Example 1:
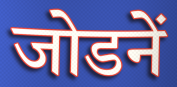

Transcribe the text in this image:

जोडनें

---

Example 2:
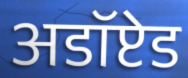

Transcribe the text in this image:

अडॉप्टेड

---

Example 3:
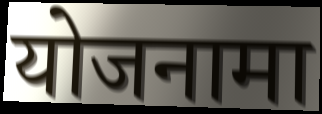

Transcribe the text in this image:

योजनामा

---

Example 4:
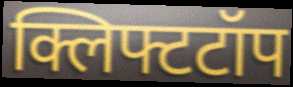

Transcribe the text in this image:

क्लिफ्टटॉप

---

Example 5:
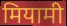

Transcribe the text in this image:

मियामी